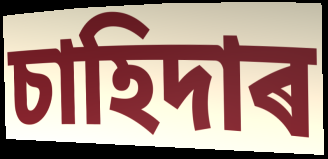
চাহিদাৰ